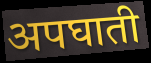
अपघाती